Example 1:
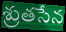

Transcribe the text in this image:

శ్రుతసేన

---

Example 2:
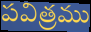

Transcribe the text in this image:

పవిత్రము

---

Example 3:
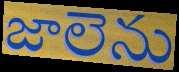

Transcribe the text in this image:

జాలెను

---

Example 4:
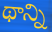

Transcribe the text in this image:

థాన్ని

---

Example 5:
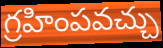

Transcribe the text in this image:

గ్రహింపవచ్చు